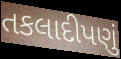
તકલાદીપણું